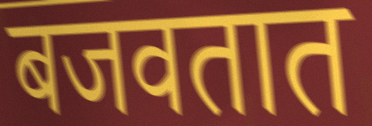
बजवतात